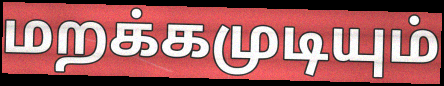
மறக்கமுடியும்